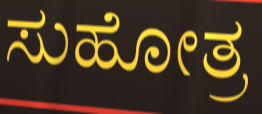
ಸುಹೋತ್ರ